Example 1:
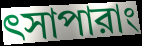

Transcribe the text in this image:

ৎসাপারাং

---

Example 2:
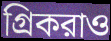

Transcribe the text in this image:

গ্রিকরাও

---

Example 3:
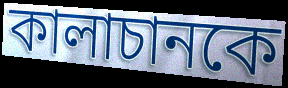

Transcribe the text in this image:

কালাচানকে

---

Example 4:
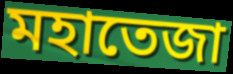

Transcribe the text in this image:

মহাতেজা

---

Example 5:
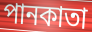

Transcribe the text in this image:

পানকাতা